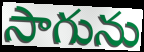
సాగును